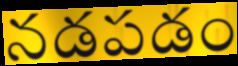
నడపడం